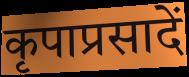
कृपाप्रसादें